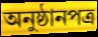
অনুষ্ঠানপত্র